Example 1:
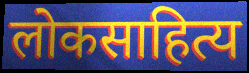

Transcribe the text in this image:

लोकसाहित्य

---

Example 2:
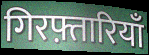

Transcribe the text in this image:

गिरफ़्तारियाँ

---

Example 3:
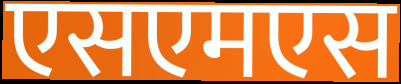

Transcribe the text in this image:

एसएमएस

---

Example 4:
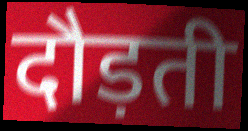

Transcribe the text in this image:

दौड़ती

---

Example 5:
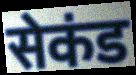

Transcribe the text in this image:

सेकंड